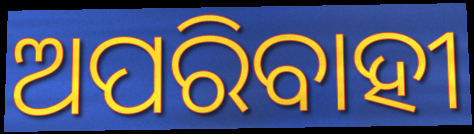
ଅପରିବାହୀ